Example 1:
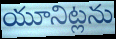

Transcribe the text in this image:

యూనిట్లను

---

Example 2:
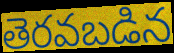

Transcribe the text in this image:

తెరవబడిన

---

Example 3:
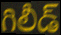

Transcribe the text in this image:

గిలీడ్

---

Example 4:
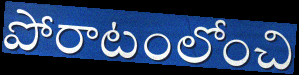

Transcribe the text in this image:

పోరాటంలోంచి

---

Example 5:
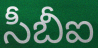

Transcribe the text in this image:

సీబీఐ